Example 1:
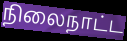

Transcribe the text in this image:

நிலைநாட்ட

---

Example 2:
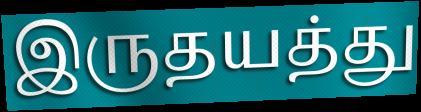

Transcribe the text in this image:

இருதயத்து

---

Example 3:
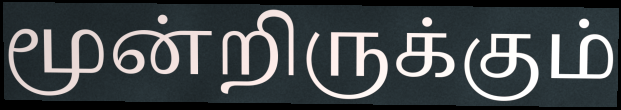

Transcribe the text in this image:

மூன்றிருக்கும்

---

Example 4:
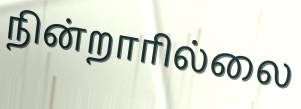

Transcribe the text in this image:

நின்றாரில்லை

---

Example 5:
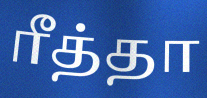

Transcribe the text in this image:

ரீத்தா